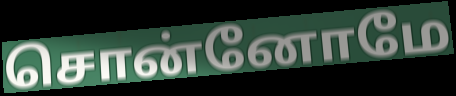
சொன்னோமே